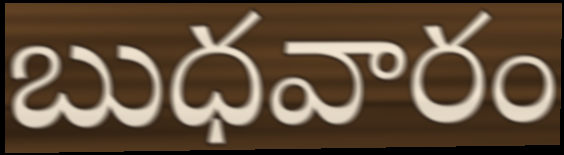
బుధవారం